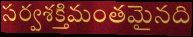
సర్వశక్తిమంతమైనది